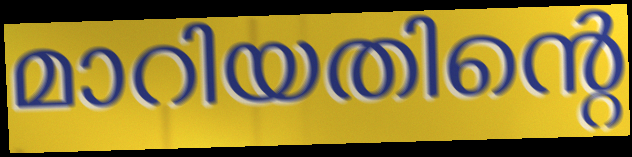
മാറിയതിന്റെ